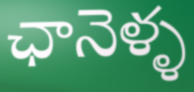
ఛానెళ్ళ